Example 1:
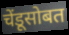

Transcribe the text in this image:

चेंडूसोबत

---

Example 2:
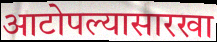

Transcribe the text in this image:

आटोपल्यासारखा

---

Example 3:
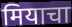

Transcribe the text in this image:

मियाचा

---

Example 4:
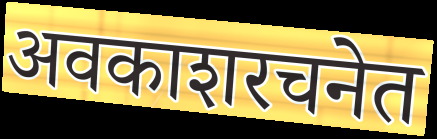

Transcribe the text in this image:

अवकाशरचनेत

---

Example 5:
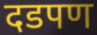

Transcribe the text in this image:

दडपण